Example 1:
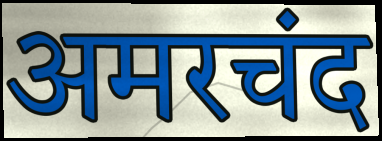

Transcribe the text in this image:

अमरचंद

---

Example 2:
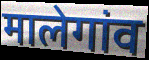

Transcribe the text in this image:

मालेगांव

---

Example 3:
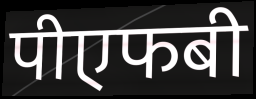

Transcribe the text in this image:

पीएफबी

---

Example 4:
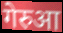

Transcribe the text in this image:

गेरुआ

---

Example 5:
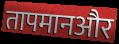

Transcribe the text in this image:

तापमानऔर